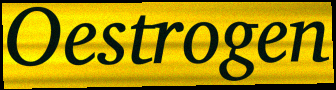
Oestrogen